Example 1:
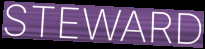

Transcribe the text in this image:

STEWARD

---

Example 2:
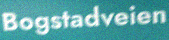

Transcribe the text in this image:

Bogstadveien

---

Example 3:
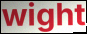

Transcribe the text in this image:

wight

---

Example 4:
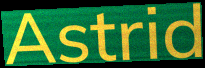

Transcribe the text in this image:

Astrid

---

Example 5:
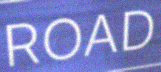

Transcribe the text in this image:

ROAD